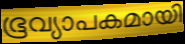
ഭൂവ്യാപകമായി